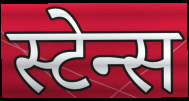
स्टेन्स